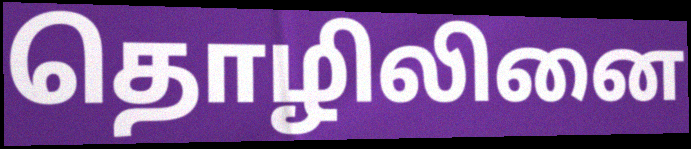
தொழிலினை